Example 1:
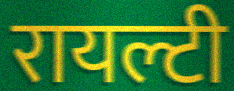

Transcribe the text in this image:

रायल्टी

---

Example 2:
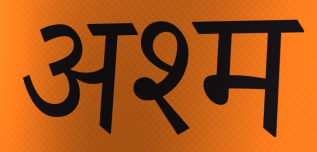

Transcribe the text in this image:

अश्म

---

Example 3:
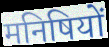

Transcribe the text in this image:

मनिषियों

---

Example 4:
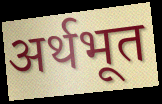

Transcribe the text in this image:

अर्थभूत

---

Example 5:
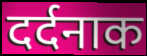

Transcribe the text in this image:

दर्दनाक